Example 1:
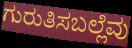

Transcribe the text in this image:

ಗುರುತಿಸಬಲ್ಲೆವು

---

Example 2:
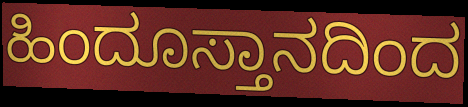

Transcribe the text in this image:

ಹಿಂದೂಸ್ತಾನದಿಂದ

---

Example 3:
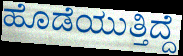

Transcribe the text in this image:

ಹೊಡೆಯುತ್ತಿದ್ದೆ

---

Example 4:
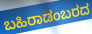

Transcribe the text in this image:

ಬಹಿರಾಡಂಬರದ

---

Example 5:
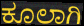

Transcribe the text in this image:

ಕೂಲಾಗಿ